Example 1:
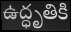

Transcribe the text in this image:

ఉద్ధృతికి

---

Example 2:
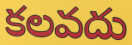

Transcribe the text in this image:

కలవదు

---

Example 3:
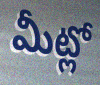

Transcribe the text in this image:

మీట్లో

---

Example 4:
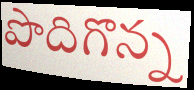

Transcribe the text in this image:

పొదిగొన్న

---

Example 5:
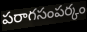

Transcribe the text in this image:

పరాగసంపర్కం